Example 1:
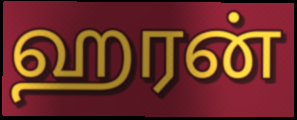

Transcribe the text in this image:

ஹரன்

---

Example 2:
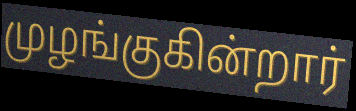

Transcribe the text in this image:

முழங்குகின்றார்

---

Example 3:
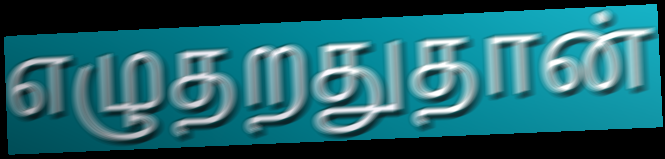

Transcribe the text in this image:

எழுதறதுதான்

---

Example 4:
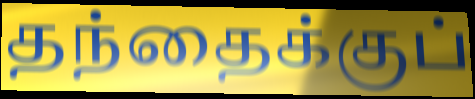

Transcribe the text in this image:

தந்தைக்குப்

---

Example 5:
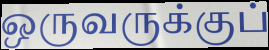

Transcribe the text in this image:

ஒருவருக்குப்